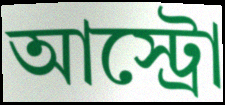
আস্ট্রো